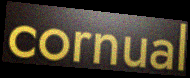
cornual